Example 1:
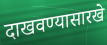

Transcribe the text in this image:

दाखवण्यासारखे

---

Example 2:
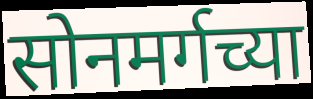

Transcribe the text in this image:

सोनमर्गच्या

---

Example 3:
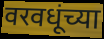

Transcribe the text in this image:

वरवधूंच्या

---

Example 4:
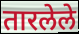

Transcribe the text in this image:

तारलेले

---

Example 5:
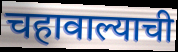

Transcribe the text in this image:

चहावाल्याची